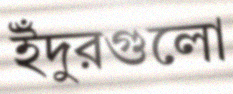
ইঁদুরগুলো